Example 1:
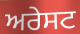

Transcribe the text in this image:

ਅਰੇਸਟ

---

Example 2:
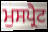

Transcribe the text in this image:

ਮੁਸਪ੍ਰੈਟ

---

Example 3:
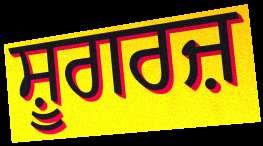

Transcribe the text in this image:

ਸ਼ੂਗਰਜ਼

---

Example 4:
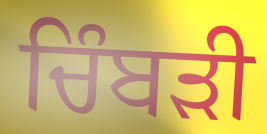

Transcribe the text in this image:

ਚਿੰਬੜੀ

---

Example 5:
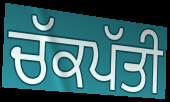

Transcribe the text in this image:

ਚੱਕਪੱਤੀ